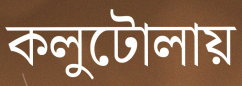
কলুটোলায়